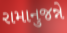
રામાનુજન્ને